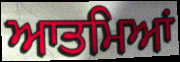
ਆਤਮਿਆਂ